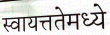
स्वायत्ततेमध्ये